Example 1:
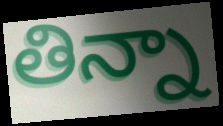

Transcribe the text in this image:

తిన్నా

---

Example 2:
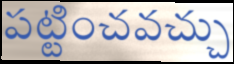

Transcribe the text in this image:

పట్టించవచ్చు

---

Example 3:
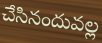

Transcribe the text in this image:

చేసినందువల్ల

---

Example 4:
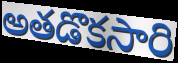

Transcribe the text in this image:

అతడొకసారి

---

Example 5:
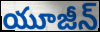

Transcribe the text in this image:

యూజీన్